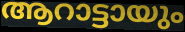
ആറാട്ടായും